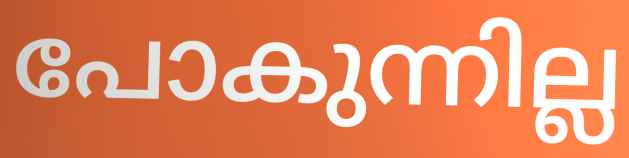
പോകുന്നില്ല